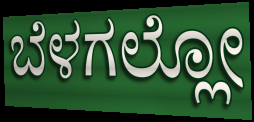
ಬೆಳಗಲ್ಲೋ